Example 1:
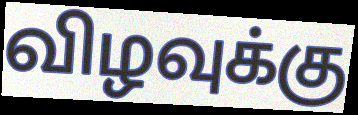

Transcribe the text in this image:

விழவுக்கு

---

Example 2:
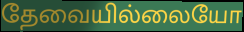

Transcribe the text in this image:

தேவையில்லையோ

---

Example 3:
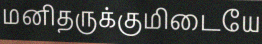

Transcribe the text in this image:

மனிதருக்குமிடையே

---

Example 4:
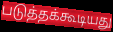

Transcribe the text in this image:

படுத்தக்கூடியது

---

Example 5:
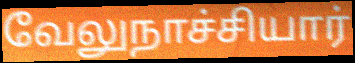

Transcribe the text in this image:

வேலுநாச்சியார்